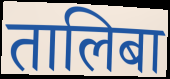
तालिबा